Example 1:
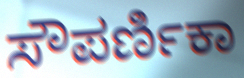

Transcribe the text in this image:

ಸೌಪರ್ಣಿಕಾ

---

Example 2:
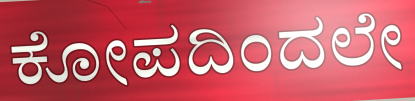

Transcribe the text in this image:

ಕೋಪದಿಂದಲೇ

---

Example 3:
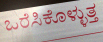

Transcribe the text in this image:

ಒರೆಸಿಕೊಳ್ಳುತ್ತ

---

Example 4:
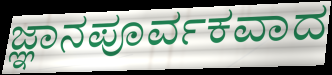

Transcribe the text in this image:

ಜ್ಞಾನಪೂರ್ವಕವಾದ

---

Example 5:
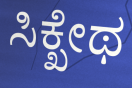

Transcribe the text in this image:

ಸಿಕ್ಖೇಥ